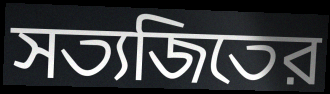
সত্যজিতের